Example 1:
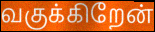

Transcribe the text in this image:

வகுக்கிறேன்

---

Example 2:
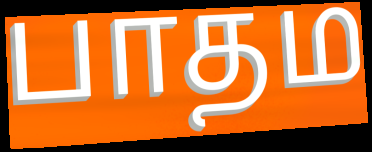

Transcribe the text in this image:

பாதம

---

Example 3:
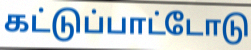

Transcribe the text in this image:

கட்டுப்பாட்டோடு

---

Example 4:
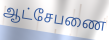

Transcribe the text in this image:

ஆட்சேபணை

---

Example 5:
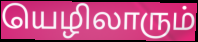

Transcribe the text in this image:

யெழிலாரும்